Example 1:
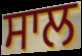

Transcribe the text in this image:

ਸਾਲ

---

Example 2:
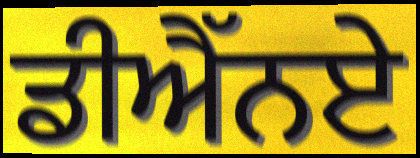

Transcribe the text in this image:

ਡੀਐੱਨਏ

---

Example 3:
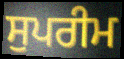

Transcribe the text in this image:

ਸੁਪਰੀਮ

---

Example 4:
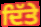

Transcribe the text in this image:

ਦਿੱਤੇ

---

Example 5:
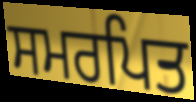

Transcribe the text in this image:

ਸਮਰਪਿਤ